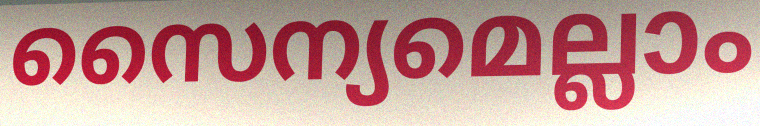
സൈന്യമെല്ലാം